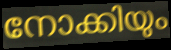
നോക്കിയും